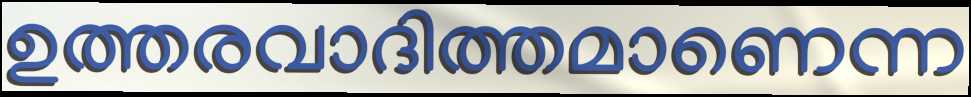
ഉത്തരവാദിത്തമാണെന്ന